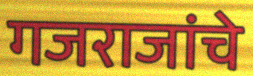
गजराजांचे